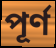
পূৰ্ণ